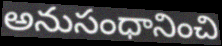
అనుసంధానించి